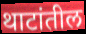
थाटांतील